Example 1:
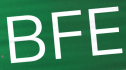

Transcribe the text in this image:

BFE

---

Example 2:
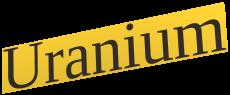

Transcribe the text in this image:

Uranium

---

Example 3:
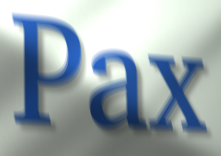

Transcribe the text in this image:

Pax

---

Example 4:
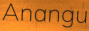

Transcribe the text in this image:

Anangu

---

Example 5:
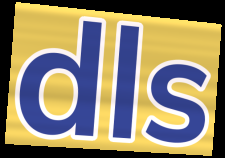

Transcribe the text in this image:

dls